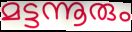
മട്ടന്നൂരും